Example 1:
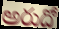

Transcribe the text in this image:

అరుదో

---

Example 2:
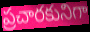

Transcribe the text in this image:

ప్రచారకునిగా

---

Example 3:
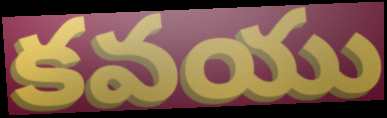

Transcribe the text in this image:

కవయు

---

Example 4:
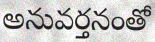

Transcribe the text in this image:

అనువర్తనంతో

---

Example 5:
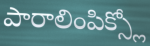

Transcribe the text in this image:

పారాలింపిక్స్లో